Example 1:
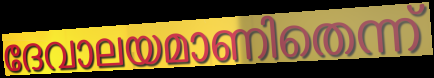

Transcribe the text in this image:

ദേവാലയമാണിതെന്ന്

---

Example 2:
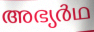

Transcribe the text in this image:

അഭ്യർഥ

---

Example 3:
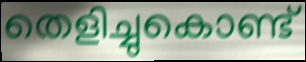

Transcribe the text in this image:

തെളിച്ചുകൊണ്ട്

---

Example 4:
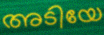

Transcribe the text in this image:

അടിയേ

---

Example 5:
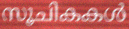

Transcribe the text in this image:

സൂചികകൾ